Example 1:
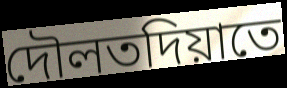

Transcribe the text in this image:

দৌলতদিয়াতে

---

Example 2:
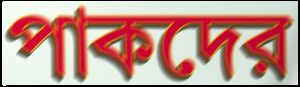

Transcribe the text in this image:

পাকদের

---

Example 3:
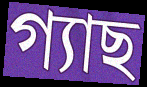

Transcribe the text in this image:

গ্যাছ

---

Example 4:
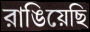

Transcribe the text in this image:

রাঙিয়েছি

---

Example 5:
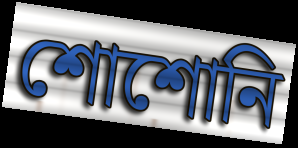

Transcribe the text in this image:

শোশোনি